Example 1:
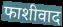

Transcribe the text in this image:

फाशीवाद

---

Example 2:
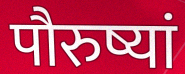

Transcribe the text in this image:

पौरुष्यां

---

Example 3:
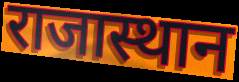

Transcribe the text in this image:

राजास्थान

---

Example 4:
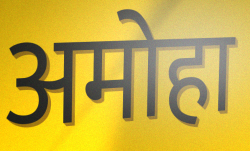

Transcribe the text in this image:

अमोहा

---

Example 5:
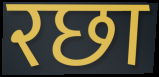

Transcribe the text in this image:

रछा